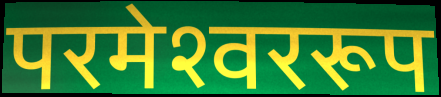
परमेश्वररूप